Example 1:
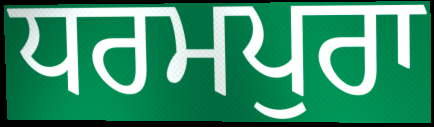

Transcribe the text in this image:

ਧਰਮਪੁਰਾ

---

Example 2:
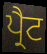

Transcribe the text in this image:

ਪ੍ਰੈਟ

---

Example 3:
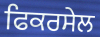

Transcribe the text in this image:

ਫਿਕਰਸੇਲ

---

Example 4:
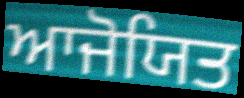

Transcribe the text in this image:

ਆਜੋਯਿਤ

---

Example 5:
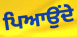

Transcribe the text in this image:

ਪਿਆਉਂਦੇ